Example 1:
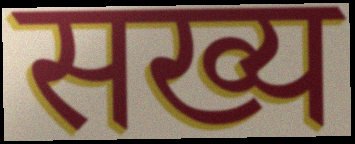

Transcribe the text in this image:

सख्य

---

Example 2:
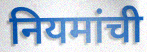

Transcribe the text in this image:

नियमांची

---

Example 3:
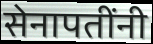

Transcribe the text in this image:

सेनापतींनी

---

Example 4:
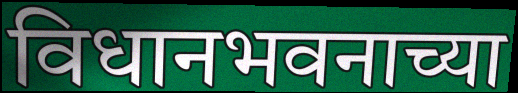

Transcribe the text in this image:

विधानभवनाच्या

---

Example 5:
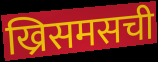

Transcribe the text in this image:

ख्रिसमसची